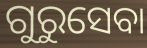
ଗୁରୁସେବା